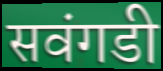
सवंगडी